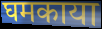
घमकाया